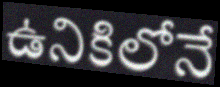
ఉనికిలోనే